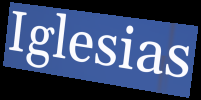
Iglesias